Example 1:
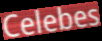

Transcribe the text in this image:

Celebes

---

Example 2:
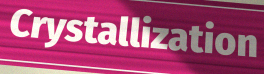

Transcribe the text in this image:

Crystallization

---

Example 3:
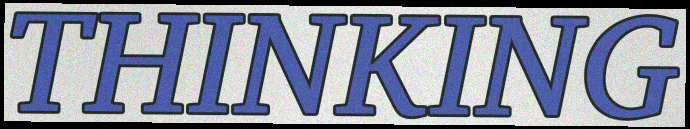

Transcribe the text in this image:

THINKING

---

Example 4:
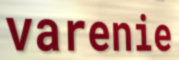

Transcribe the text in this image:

varenie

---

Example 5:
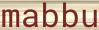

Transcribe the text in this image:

mabbu